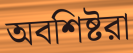
অবশিষ্টরা